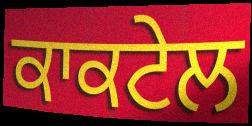
ਕਾਕਟੇਲ